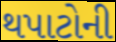
થપાટોની